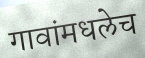
गावांमधलेच